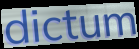
dictum